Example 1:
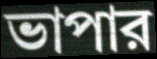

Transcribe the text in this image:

ভাপার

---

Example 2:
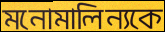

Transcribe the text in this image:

মনোমালিন্যকে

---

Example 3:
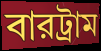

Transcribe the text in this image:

বারট্রাম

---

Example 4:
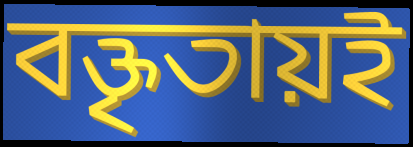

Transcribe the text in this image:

বক্তৃতায়ই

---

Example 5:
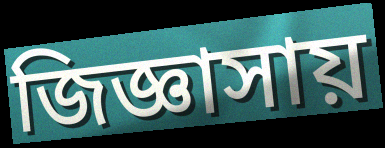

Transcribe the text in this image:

জিজ্ঞাসায়